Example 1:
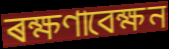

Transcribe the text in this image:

ৰক্ষণাবেক্ষন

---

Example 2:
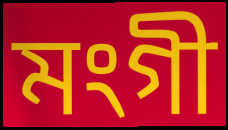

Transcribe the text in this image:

মংগী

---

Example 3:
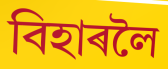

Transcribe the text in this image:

বিহাৰলৈ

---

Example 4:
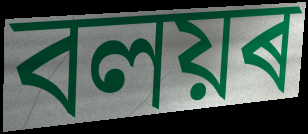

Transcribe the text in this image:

বলয়ৰ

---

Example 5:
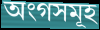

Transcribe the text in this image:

অংগসমূহ